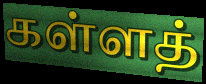
கள்ளத்